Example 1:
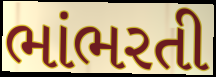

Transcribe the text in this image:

ભાંભરતી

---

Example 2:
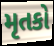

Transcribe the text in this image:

મૃતકો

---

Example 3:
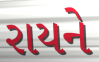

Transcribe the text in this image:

રાયને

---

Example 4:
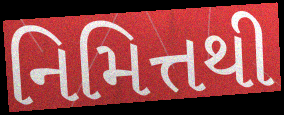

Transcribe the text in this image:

નિમિત્તથી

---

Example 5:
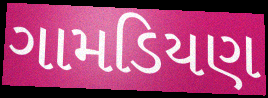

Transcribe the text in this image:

ગામડિયણ